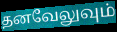
தனவேலுவும்